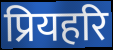
प्रियहरि